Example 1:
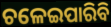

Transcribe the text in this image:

ଚଳେଇପାରିବି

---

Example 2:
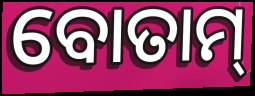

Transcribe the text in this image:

ବୋତାମ୍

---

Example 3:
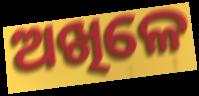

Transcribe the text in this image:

ଅଖିଳେ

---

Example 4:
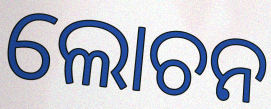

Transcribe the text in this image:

ଲୋଚନ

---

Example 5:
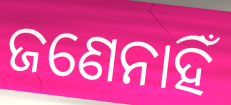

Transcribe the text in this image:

ଜଣେନାହିଁ